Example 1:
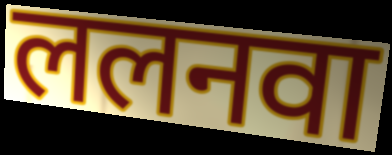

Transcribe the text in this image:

ललनवा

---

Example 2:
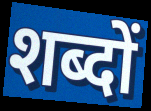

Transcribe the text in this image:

शब्दों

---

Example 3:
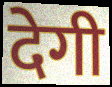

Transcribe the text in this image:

देगी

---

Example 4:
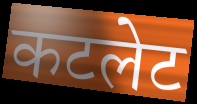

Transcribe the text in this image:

कटलेट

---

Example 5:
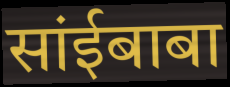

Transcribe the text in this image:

सांईबाबा